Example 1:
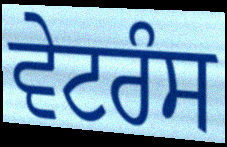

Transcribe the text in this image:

ਵੇਟਰੰਸ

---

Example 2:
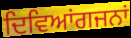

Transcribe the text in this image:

ਦਿਵਿਆਂਗਜਨਾਂ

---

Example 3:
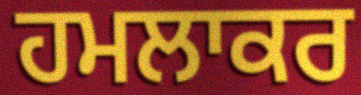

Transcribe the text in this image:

ਹਮਲਾਕਰ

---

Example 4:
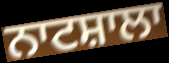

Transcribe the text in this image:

ਨਾਟਸ਼ਾਲਾ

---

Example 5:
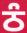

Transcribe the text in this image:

ਠੰ